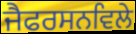
ਜੈਫਰਸਨਵਿਲੇ